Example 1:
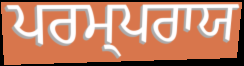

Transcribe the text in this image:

ਪਰਮ੍ਪਰਾਯ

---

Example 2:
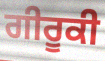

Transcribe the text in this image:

ਗੀਰੂਕੀ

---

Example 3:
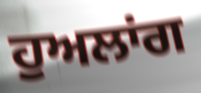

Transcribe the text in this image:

ਹੁਅਲਾਂਗ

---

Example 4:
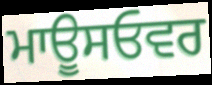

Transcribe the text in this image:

ਮਾਊਸਓਵਰ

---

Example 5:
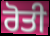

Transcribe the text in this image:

ਰੋਤੀ